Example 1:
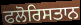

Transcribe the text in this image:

ਫਲੋਰਿਸਤਾਨ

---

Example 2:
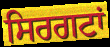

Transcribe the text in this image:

ਸਿਰਗਟਾਂ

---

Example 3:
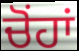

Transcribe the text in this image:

ਚੋਂਹਾਂ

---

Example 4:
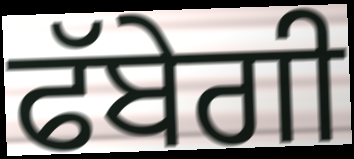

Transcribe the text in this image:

ਫੱਬੇਗੀ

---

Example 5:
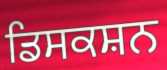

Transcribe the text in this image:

ਡਿਸਕਸ਼ਨ